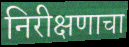
निरीक्षणाचा